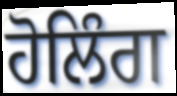
ਹੋਲਿੰਗ